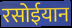
रसोईयान